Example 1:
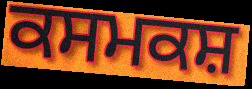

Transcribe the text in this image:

ਕਸਮਕਸ਼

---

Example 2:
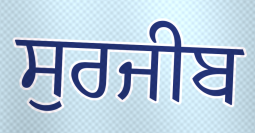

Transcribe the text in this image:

ਸੁਰਜੀਬ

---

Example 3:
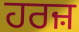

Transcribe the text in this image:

ਹਰਜ਼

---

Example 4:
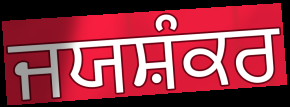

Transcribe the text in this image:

ਜਯਸ਼ੰਕਰ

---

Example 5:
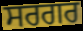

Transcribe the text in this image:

ਸਰਗਰ